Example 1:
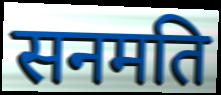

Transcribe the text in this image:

सनमति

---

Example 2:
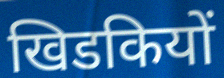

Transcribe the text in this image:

खिडकियों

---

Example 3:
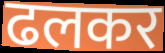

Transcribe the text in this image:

ढलकर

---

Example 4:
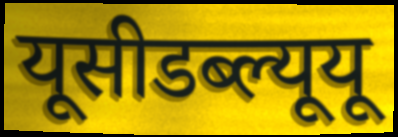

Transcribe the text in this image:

यूसीडब्ल्यूयू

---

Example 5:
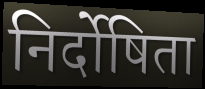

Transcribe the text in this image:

निर्दोषिता